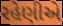
રહેણીએ